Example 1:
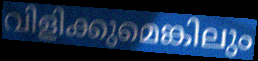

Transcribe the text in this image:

വിളിക്കുമെങ്കിലും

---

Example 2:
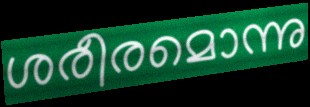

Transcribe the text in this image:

ശരീരമൊന്നു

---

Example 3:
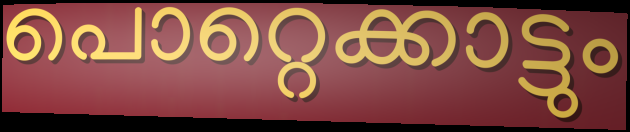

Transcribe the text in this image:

പൊറ്റെക്കാട്ടും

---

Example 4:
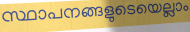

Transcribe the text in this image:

സ്ഥാപനങ്ങളുടെയെല്ലാം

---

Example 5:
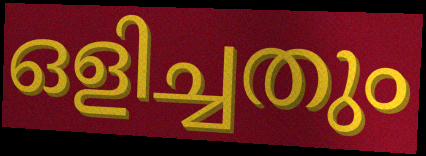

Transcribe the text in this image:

ഒളിച്ചതും